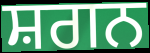
ਸ਼ਗਨ